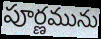
పూర్ణమును